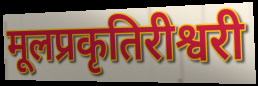
मूलप्रकृतिरीश्वरी